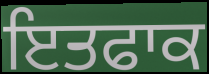
ਇਤਫਾਕ